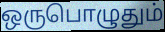
ஒருபொழுதும்